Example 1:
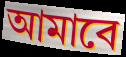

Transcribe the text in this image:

আমাবে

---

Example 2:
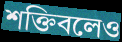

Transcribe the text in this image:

শক্তিবলেও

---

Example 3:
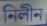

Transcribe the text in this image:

নিলীন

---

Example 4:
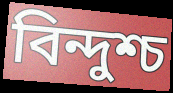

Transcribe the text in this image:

বিন্দুশ্চ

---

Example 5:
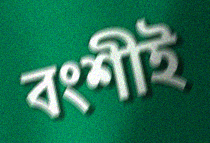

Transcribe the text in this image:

বংশীই